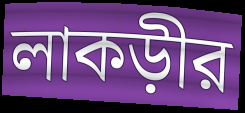
লাকড়ীর